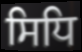
ਸਿਧਿ